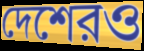
দেশেরও